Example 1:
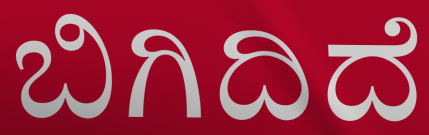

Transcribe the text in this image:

ಬಿಗಿದಿದೆ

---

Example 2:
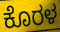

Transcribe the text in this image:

ಕೊರಳ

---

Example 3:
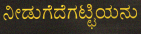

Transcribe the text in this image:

ನೀಡುಗೆದೆಗಟ್ಟಿಯನು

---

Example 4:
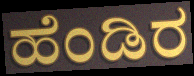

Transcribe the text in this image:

ಹೆಂಡಿರ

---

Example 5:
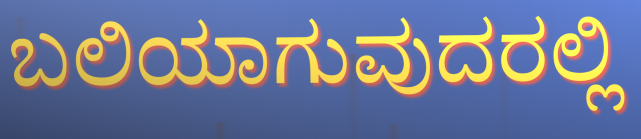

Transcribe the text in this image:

ಬಲಿಯಾಗುವುದರಲ್ಲಿ